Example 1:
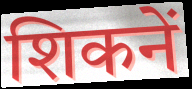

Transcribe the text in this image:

शिकनें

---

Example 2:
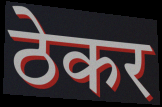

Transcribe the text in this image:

ठेकर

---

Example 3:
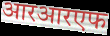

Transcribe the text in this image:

आरआरएफ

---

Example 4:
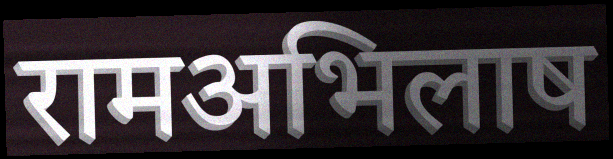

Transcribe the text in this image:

रामअभिलाष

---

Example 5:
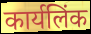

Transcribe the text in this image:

कार्यलिंक